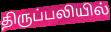
திருப்பலியில்